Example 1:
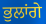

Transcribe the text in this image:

ਭੁਲਾਂਗੇ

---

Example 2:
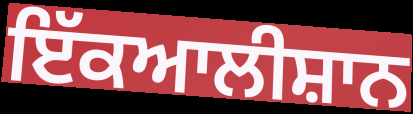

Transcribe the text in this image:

ਇੱਕਆਲੀਸ਼ਾਨ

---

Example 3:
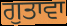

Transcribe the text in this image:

ਗੁਤਾਵਾ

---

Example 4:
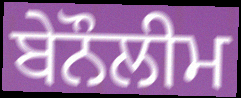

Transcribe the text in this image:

ਬੇਨੌਲੀਮ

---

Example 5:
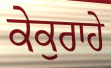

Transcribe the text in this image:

ਕੇਕੁਰਾਹੇ